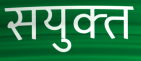
सयुक्‍त